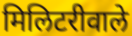
मिलिटरीवाले